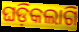
ଘଡ଼ିକଲାଗି